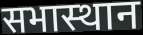
सभास्थान